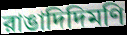
রাঙাদিদিমণি